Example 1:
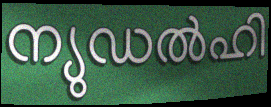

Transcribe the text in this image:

ന്യുഡൽഹി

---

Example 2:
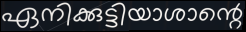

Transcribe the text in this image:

ഏനിക്കുട്ടിയാശാന്റെ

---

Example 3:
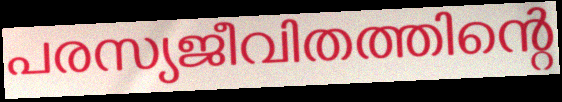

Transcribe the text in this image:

പരസ്യജീവിതത്തിന്റെ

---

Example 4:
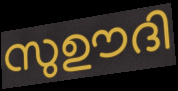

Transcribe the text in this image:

സുഊദി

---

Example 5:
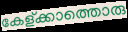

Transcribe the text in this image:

കേള്ക്കാത്തൊരു